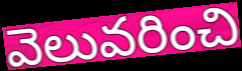
వెలువరించి